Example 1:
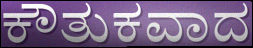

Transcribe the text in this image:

ಕೌತುಕವಾದ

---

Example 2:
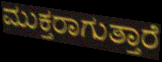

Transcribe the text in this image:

ಮುಕ್ತರಾಗುತ್ತಾರೆ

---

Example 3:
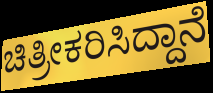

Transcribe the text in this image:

ಚಿತ್ರೀಕರಿಸಿದ್ದಾನೆ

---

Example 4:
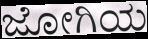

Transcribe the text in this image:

ಜೋಗಿಯ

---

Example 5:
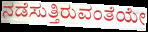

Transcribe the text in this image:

ನಡೆಸುತ್ತಿರುವಂತೆಯೇ